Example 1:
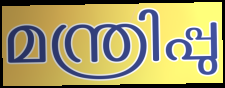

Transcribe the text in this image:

മന്ത്രിപ്പു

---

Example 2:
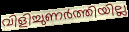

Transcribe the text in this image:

വിളിച്ചുണർത്തിയില്ല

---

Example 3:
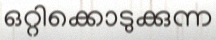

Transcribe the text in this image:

ഒറ്റിക്കൊടുക്കുന്ന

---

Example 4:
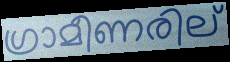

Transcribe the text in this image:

ഗ്രാമീണരില്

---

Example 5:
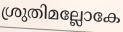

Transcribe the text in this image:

ശ്രുതിമല്ലോകേ